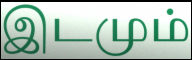
இடமும்